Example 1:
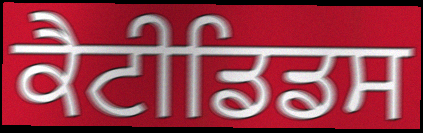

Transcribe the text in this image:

ਕੈਟੀਡਿਡਸ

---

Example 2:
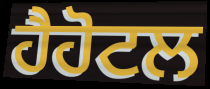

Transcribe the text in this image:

ਹੈਹੋਟਲ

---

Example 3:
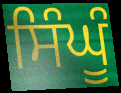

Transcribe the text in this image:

ਸਿੰਘੂੰ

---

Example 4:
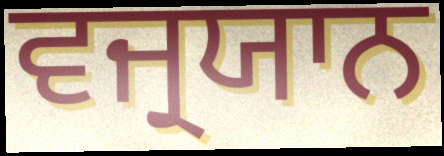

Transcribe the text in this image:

ਵਜ੍ਰਯਾਨ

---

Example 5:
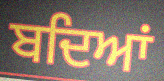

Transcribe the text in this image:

ਬਦਿਆਂ